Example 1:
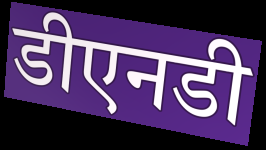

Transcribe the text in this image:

डीएनडी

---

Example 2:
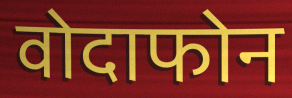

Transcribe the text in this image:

वोदाफोन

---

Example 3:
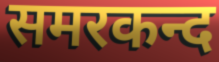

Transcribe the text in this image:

समरकन्द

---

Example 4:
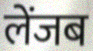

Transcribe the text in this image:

लेंजब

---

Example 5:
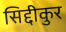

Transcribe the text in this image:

सिद्दीकुर